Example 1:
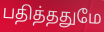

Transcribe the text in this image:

பதித்ததுமே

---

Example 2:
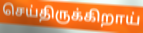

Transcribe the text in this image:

செய்திருக்கிறாய்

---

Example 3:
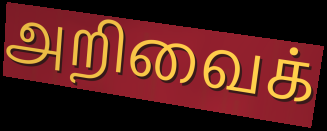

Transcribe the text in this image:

அறிவைக்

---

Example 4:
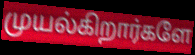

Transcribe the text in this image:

முயல்கிறார்களே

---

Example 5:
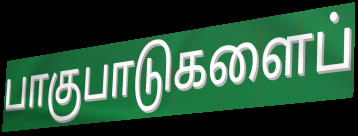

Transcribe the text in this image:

பாகுபாடுகளைப்